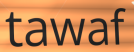
tawaf